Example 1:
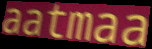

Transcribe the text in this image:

aatmaa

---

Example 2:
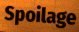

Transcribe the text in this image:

Spoilage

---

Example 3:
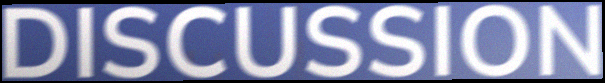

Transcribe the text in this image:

DISCUSSION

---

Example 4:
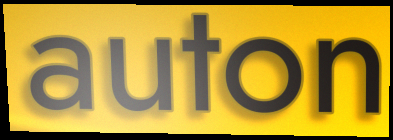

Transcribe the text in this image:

auton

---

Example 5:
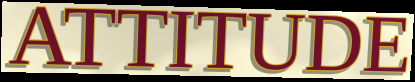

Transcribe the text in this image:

ATTITUDE